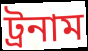
ট্রনাম